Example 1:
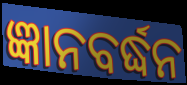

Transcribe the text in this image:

ଜ୍ଞାନବର୍ଦ୍ଧନ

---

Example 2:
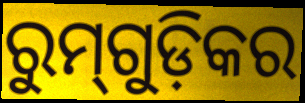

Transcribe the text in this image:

ରୁମ୍‌ଗୁଡ଼ିକର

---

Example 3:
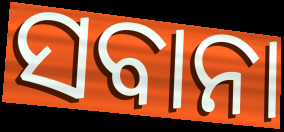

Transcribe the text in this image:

ସବାନା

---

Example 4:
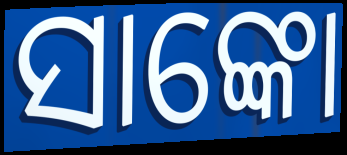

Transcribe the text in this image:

ସାଙ୍କୋ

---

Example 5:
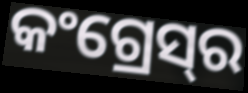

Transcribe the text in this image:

କଂଗ୍ରେସ୍‌ର